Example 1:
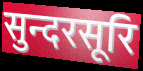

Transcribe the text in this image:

सुन्दरसूरि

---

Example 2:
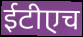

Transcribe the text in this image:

ईटीएच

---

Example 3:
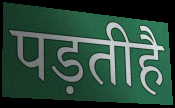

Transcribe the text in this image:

पड़तीहै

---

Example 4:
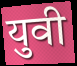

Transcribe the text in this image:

युवी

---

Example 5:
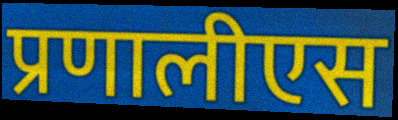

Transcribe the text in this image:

प्रणालीएस